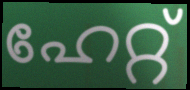
ഹേറ്റ്